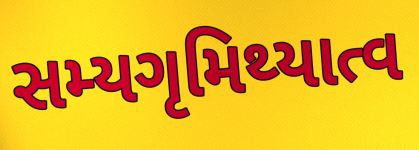
સમ્યગૃમિથ્યાત્વ